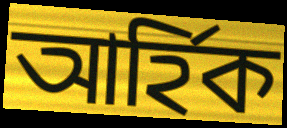
আৰ্হিক